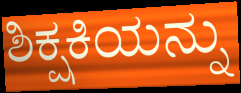
ಶಿಕ್ಷಕಿಯನ್ನು